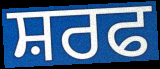
ਸ਼ਰਫ